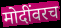
मोदींवरच